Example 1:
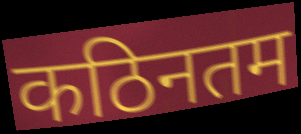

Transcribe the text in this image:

कठिनतम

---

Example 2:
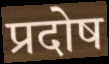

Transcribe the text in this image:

प्रदोष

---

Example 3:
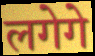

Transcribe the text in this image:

लगेगे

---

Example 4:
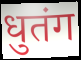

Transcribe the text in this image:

धुतंग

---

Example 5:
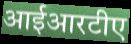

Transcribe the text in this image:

आईआरटीए